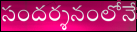
సందర్శనంలోనే